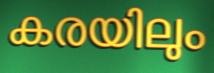
കരയിലും